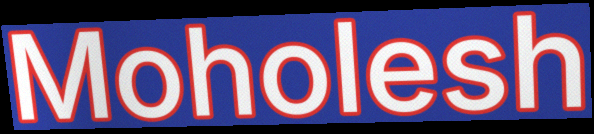
Moholesh